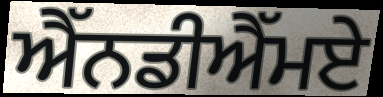
ਐੱਨਡੀਐੱਮਏ